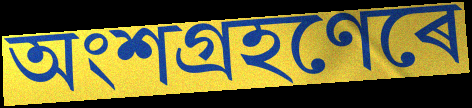
অংশগ্ৰহণেৰে